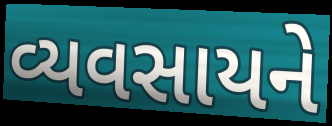
વ્યવસાયને